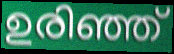
ഉരിഞ്ഞ്